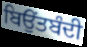
ਬਿਉਂਤਬੰਦੀ